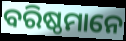
ବରିଷ୍ଠମାନେ